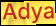
Adya